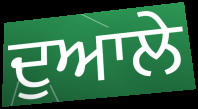
ਦੁਆਲੇ